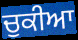
ਚੁਕੀਆ